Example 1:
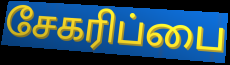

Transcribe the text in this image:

சேகரிப்பை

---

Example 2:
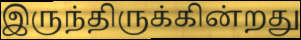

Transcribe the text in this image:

இருந்திருக்கின்றது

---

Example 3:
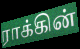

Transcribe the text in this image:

ராக்கின்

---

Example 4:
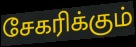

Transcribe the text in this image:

சேகரிக்கும்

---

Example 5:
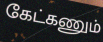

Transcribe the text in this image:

கேட்கணும்